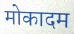
मोकादम